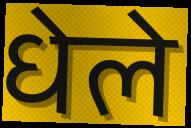
धेले